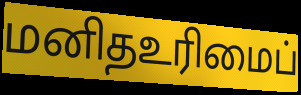
மனிதஉரிமைப்